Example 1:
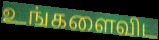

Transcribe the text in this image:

உங்களைவிட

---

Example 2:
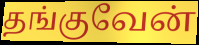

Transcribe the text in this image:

தங்குவேன்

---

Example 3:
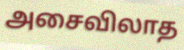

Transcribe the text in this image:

அசைவிலாத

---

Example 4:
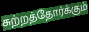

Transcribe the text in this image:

சுற்றத்தோர்க்கும்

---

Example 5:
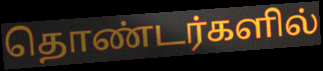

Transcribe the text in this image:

தொண்டர்களில்